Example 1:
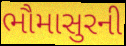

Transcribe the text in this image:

ભૌમાસુરની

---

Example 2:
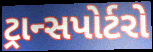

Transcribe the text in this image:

ટ્રાન્સપોર્ટરો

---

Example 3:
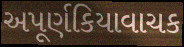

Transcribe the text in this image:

અપૂર્ણકિયાવાચક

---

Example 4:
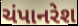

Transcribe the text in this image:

ચંપાનરેશ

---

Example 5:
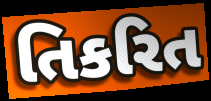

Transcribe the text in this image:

તિકરિત